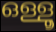
ഒള്ളൂ